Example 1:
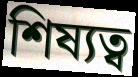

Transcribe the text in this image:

শিষ্যত্ব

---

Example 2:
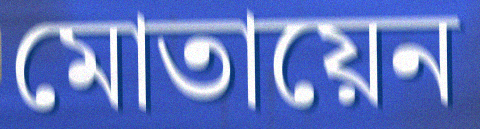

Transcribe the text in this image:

মোতায়েন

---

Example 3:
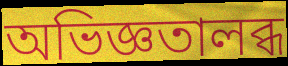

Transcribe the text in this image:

অভিজ্ঞতালব্ধ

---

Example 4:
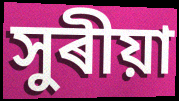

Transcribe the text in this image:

সুৰীয়া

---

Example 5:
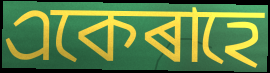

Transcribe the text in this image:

একেৰাহে